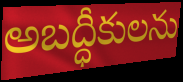
అబద్ధీకులను